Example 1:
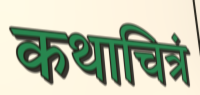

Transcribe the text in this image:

कथाचित्रं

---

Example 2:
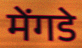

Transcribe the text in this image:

मेंगडे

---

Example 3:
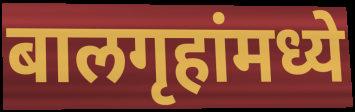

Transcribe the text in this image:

बालगृहांमध्ये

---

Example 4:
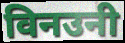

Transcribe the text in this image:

विनउनी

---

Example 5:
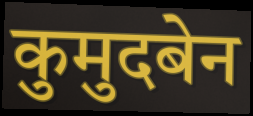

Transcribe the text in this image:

कुमुदबेन